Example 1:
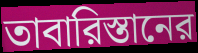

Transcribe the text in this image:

তাবারিস্তানের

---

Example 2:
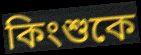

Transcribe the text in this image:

কিংশুকে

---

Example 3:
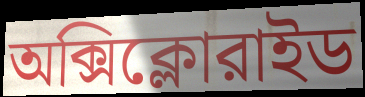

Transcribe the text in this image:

অক্সিক্লোরাইড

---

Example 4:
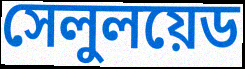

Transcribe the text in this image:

সেলুলয়েড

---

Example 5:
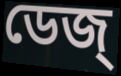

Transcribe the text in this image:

ডেজ্